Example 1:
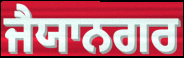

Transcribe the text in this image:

ਜੈਯਾਨਗਰ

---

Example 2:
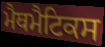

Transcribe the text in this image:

ਮੈਥਮੈਟਿਕਸ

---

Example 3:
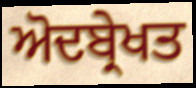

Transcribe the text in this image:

ਅੋਦਬ੍ਰੇਖਤ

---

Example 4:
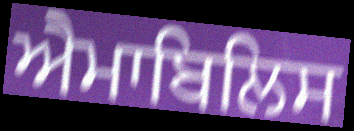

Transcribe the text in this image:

ਐਮਾਬਿਲਿਸ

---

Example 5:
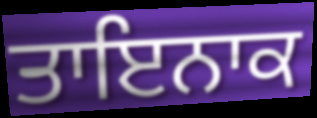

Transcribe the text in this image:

ਤਾਇਨਾਕ